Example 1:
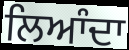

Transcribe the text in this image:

ਲਿਆੰਦਾ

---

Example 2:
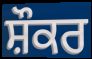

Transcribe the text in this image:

ਸ਼ੌਕਰ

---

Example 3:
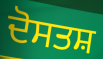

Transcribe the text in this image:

ਦੋਸਤਸ਼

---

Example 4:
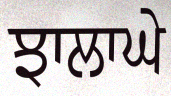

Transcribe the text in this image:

ਝਾਲਾਘੇ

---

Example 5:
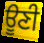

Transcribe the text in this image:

ਊਣੀ